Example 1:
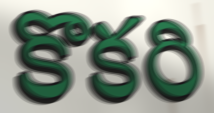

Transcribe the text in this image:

కొకరి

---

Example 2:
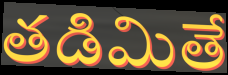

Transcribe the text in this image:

తడిమితే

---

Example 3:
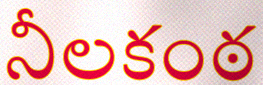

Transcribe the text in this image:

నీలకంఠ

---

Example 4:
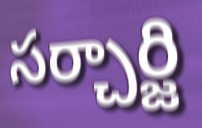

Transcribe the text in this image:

సర్చార్జి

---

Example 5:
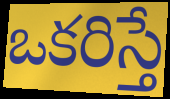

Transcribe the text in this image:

ఒకరిస్తే